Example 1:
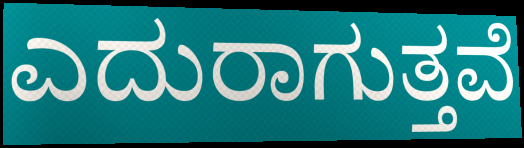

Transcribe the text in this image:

ಎದುರಾಗುತ್ತವೆ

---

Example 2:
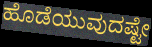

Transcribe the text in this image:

ಹೊಡೆಯುವುದಷ್ಟೇ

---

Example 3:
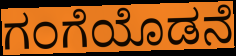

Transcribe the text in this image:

ಗಂಗೆಯೊಡನೆ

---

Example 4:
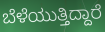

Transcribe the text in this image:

ಬೆಳೆಯುತ್ತಿದ್ದಾರೆ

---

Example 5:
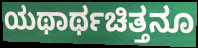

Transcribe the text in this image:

ಯಥಾರ್ಥಚಿತ್ತನೂ